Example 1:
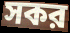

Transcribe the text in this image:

সকর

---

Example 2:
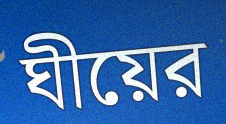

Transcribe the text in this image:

ঘীয়ের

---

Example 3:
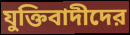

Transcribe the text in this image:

যুক্তিবাদীদের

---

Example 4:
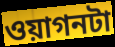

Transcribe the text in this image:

ওয়াগনটা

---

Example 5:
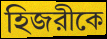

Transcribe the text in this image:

হিজরীকে